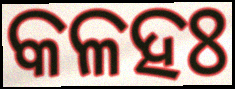
କଳହଃ